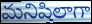
మనిషిలాగా